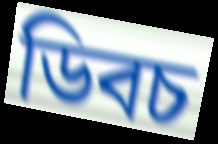
ডিবচ